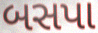
બસપા